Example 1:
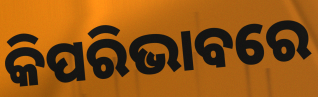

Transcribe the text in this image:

କିପରିଭାବରେ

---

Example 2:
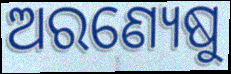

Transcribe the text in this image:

ଅରଣ୍ୟେଷୁ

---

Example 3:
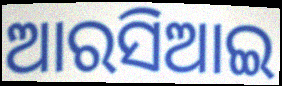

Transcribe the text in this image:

ଆରସିଆଇ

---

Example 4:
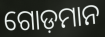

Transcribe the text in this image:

ଗୋଡ଼ମାନ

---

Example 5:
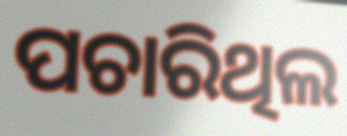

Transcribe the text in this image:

ପଚାରିଥିଲ